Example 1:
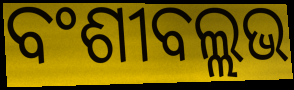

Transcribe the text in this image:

ବଂଶୀବଲ୍ଲଭ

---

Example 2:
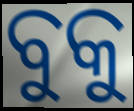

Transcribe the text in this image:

ବୁକୁ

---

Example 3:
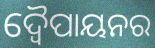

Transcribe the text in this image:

ଦ୍ୱୈପାୟନର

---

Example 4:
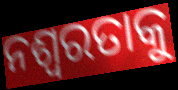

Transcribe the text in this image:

ନଶ୍ବରତାକୁ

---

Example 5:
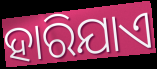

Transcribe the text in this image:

ହାରିଯାଏ